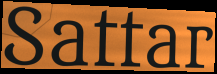
Sattar